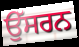
ਉੱਸਰਨ